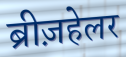
ब्रीज़हेलर